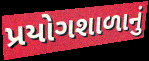
પ્રયોગશાળાનું